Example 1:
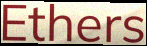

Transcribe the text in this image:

Ethers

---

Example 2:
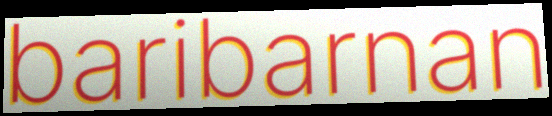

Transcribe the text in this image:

baribarnan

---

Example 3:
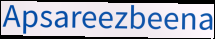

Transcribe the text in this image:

Apsareezbeena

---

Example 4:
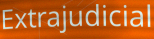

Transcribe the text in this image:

Extrajudicial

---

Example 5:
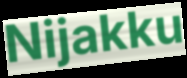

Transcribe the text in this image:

Nijakku